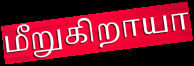
மீறுகிறாயா